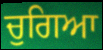
ਚੁਗਿਆ